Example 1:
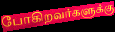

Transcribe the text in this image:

போகிறவர்களுக்கு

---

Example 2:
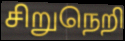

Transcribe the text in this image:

சிறுநெறி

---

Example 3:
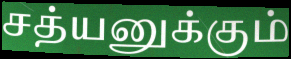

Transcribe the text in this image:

சத்யனுக்கும்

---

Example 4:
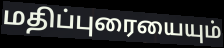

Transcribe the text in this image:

மதிப்புரையையும்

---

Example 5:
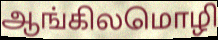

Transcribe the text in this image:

ஆங்கிலமொழி